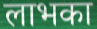
लाभका